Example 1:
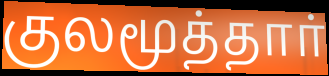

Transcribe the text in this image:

குலமூத்தார்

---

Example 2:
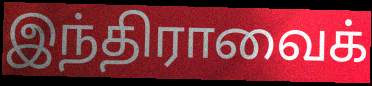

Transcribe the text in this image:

இந்திராவைக்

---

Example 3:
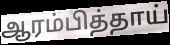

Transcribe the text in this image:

ஆரம்பித்தாய்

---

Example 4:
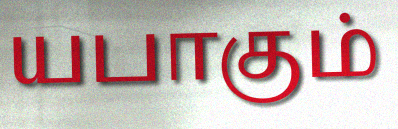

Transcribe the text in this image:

யபாகும்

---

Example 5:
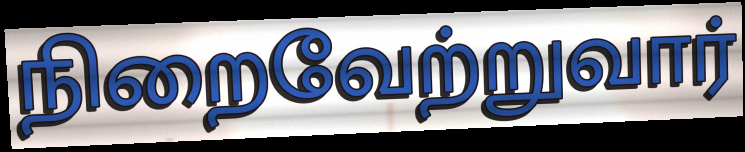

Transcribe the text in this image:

நிறைவேற்றுவார்